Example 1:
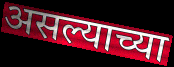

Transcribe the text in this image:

असल्याच्या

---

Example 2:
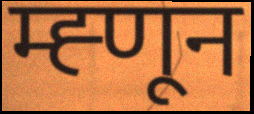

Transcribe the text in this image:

म्ह्णून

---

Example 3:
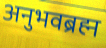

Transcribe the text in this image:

अनुभवब्रह्म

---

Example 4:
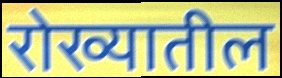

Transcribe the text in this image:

रोख्यातील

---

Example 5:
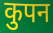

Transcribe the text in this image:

कुपन